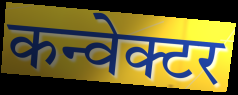
कन्वेक्टर